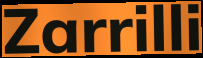
Zarrilli